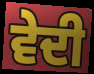
ਵੇਦੀ